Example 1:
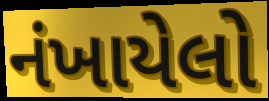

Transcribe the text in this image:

નંખાયેલો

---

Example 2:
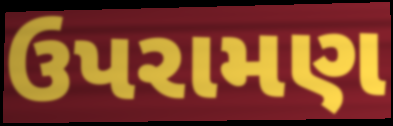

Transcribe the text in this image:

ઉપરામણ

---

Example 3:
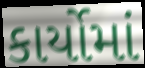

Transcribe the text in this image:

કાર્યોમાં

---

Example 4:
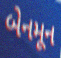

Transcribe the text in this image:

બેનમૂન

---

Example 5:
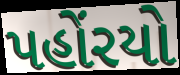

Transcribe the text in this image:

પહોંરયો